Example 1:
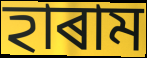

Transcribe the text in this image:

হাৰাম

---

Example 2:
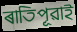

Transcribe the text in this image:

ৰাতিপূৱাই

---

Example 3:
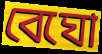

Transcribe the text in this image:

বেঘো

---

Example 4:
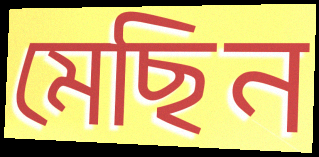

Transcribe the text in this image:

মেছিন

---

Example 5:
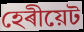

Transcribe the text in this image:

হেৰীয়েট